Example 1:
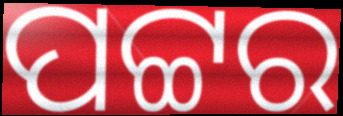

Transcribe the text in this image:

ପଟ୍ଟର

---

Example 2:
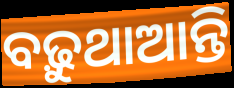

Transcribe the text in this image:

ବଢ଼ୁଥାଆନ୍ତି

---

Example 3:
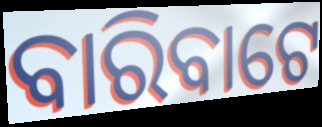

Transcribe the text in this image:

ବାରିବାଟେ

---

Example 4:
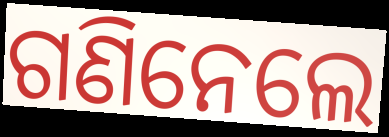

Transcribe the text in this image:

ଗଣିନେଲେ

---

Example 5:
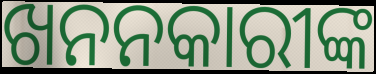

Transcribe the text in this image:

ଖନନକାରୀଙ୍କ